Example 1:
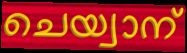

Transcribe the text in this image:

ചെയ്വാന്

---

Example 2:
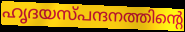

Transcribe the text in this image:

ഹൃദയസ്പന്ദനത്തിന്റെ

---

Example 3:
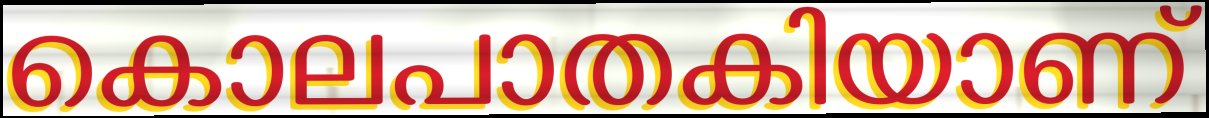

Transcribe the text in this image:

കൊലപാതകിയാണ്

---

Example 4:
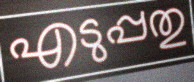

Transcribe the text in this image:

എടുപ്പതു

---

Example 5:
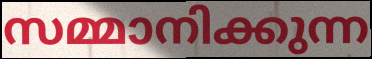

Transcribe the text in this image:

സമ്മാനിക്കുന്ന